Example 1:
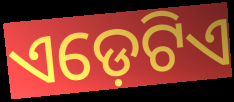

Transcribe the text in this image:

ଏଡ଼େଟିଏ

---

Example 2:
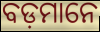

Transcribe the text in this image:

ବଡ଼ମାନେ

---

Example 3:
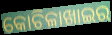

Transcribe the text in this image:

କୋଚିଳାଖାଇର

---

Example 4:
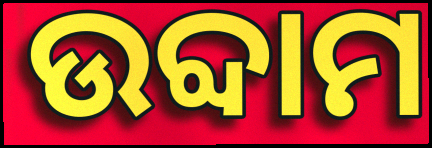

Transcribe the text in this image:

ଉବ୍ଦାମ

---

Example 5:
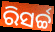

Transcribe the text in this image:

ରିସର୍ଚ୍ଚ